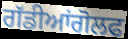
ਗੱਡੀਆਂਗੋਲਫ